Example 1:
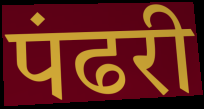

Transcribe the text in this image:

पंढरी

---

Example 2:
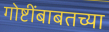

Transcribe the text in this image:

गोष्टींबाबतच्या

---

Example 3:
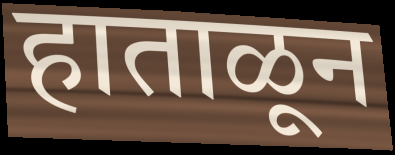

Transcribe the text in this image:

हाताळून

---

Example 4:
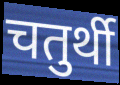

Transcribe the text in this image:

चतुर्थी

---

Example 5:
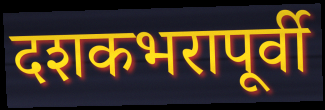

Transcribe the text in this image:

दशकभरापूर्वी